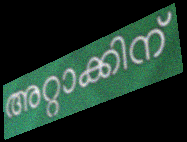
അറ്റാക്കിന്